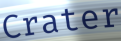
Crater